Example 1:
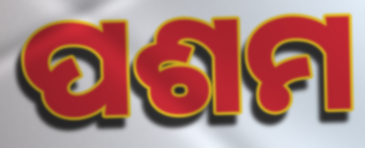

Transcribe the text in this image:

ପଶମ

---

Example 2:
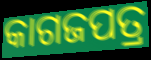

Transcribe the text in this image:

କାଗଜପତ୍ର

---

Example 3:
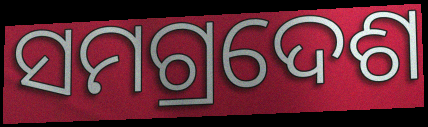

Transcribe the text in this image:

ସମଗ୍ରଦେଶ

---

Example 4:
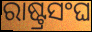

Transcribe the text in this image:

ରାଷ୍ଟ୍ରସଂଘ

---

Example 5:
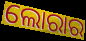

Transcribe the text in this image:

ଲୋରାର